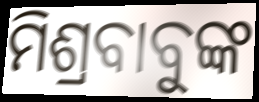
ମିଶ୍ରବାବୁଙ୍କ